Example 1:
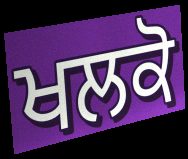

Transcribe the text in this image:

ਖਲਕੋ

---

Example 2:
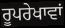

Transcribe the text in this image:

ਰੂਪਰੇਖਾਵਾਂ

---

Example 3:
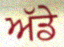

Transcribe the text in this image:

ਅੱਡੇ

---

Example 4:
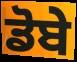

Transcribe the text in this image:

ਡੋਬੇ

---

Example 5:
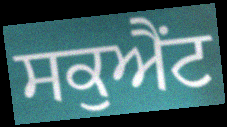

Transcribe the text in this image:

ਸਕੁਐਂਟ